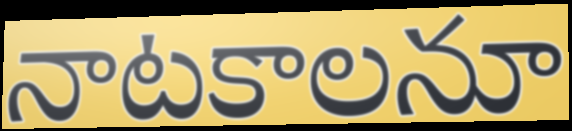
నాటకాలనూ